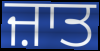
ਜ਼ਾਤ